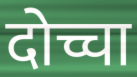
दोच्चा